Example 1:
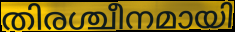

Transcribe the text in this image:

തിരശ്ചീനമായി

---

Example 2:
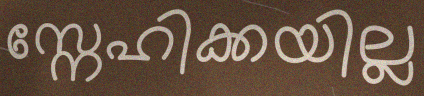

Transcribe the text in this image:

സ്നേഹിക്കയില്ല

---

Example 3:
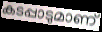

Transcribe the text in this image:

കടപ്പാടുമാണ്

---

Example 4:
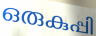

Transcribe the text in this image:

ഒരുകുപ്പി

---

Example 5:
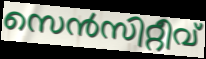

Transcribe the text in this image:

സെൻസിറ്റീവ്